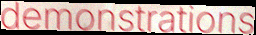
demonstrations